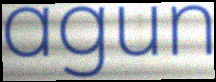
agun